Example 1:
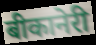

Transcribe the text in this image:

बीकानेरी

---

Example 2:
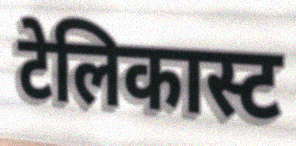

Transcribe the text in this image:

टेलिकास्ट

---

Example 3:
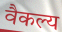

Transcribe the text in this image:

वैकल्य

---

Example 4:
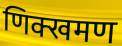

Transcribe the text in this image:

णिक्खमण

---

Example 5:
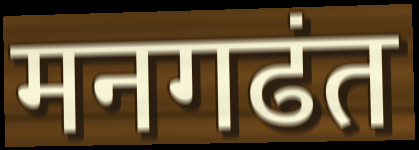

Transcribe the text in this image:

मनगढंत